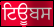
ਟਿਊਬਸ